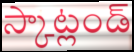
స్కాట్లండ్